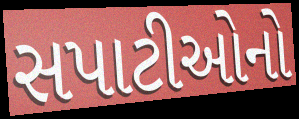
સપાટીઓનો